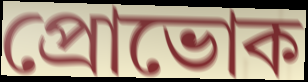
প্রোভোক